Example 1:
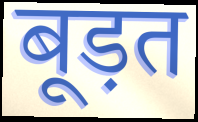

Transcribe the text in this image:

बूड़त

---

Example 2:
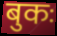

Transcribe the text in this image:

बुकः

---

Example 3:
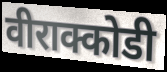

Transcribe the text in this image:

वीराक्कोडी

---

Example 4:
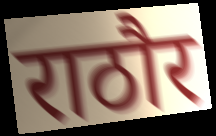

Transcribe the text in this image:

राठौर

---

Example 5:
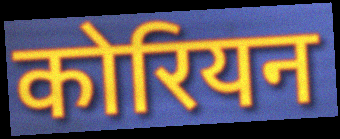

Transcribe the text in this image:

कोरियन